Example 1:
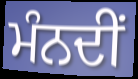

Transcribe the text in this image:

ਮੰਨਦੀਂ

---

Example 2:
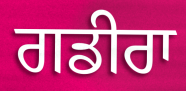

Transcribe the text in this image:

ਗਡੀਰਾ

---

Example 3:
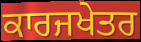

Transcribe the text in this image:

ਕਾਰਜਖੇਤਰ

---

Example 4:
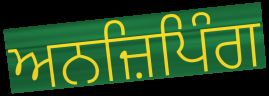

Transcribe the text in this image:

ਅਨਜ਼ਿਪਿੰਗ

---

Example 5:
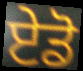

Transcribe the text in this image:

ਏਡੋ